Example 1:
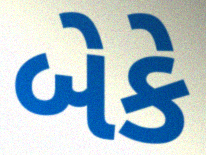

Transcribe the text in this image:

બેકે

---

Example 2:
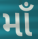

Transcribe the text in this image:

માઁ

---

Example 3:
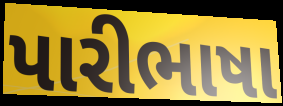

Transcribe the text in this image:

પારીભાષા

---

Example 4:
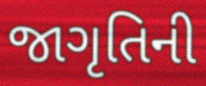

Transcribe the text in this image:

જાગૃતિની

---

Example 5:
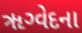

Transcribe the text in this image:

ૠગ્વેદના